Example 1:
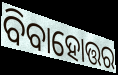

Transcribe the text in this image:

ବିବାହୋତ୍ତର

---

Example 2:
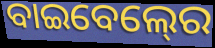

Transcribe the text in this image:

ବାଇବେଲ୍‍ରେ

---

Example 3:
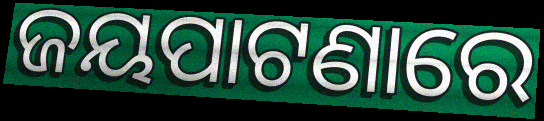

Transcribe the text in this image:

ଜୟପାଟଣାରେ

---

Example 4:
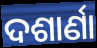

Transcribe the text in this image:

ଦଶାର୍ଣା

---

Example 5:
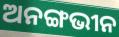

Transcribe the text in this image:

ଅନଙ୍ଗଭୀନ